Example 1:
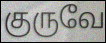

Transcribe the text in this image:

குருவே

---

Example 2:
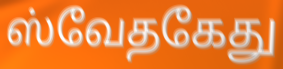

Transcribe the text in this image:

ஸ்வேதகேது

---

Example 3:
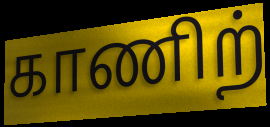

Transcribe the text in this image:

காணிற்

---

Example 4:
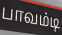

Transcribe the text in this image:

பாவம்டி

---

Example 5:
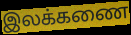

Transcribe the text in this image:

இலக்கணை